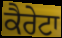
ਕੈਰੇਟਾ